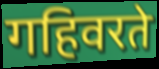
गहिवरते